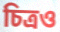
চিত্ৰও